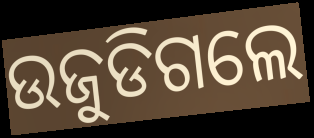
ଉଜୁଡିଗଲେ